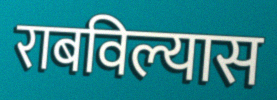
राबविल्यास